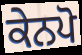
ਕੇਨਪੋ